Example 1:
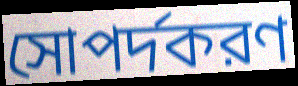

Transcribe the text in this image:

সোপর্দকরণ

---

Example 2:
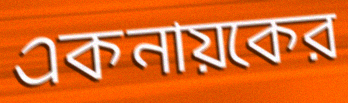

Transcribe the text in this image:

একনায়কের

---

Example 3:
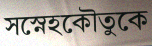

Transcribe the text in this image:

সস্নেহকৌতুকে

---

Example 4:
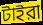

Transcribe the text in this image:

টাইরা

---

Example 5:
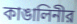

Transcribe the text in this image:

কাঙালিনীর